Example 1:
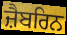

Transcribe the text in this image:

ਜ਼ੈਬਰਿਨ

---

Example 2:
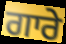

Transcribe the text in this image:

ਗਾਰੇ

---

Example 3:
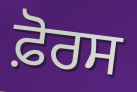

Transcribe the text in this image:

ਫ਼ੋਰਸ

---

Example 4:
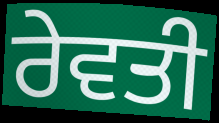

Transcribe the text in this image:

ਰੇਵਤੀ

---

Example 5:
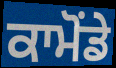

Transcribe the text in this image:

ਕਾਮੋਂਡੇ